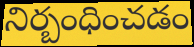
నిర్బంధించడం